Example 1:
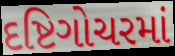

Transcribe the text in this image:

દષ્ટિગોચરમાં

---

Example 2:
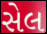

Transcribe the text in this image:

સેલ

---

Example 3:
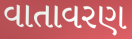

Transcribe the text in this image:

વાતાવરણ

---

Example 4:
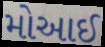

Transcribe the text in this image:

મોઆઈ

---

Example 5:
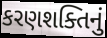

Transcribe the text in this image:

કરણશક્તિનું